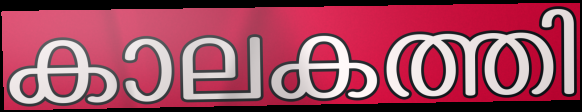
കാലകത്തി